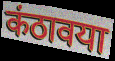
कंठावया